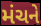
મંચને